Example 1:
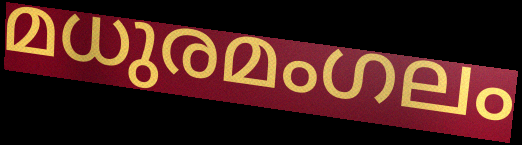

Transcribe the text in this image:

മധുരമംഗലം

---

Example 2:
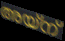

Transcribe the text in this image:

അയ്ന്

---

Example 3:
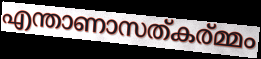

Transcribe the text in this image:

എന്താണാസത്കര്മ്മം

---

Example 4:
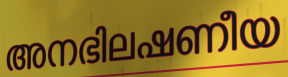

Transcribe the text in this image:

അനഭിലഷണീയ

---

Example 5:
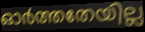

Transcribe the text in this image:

ഓർത്തതേയില്ല